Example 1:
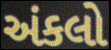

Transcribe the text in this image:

અંકલો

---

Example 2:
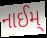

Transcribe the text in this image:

નાઈમ્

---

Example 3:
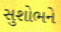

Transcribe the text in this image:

સુશોભને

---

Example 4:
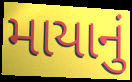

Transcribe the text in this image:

માયાનું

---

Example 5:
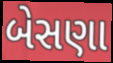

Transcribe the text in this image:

બેસણા